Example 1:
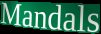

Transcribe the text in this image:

Mandals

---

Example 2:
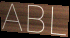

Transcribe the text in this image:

ABL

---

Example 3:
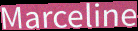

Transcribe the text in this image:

Marceline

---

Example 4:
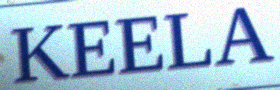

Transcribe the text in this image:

KEELA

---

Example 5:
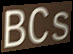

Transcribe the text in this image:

BCs